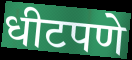
धीटपणे